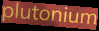
plutonium